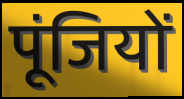
पूंजियों